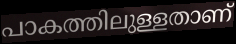
പാകത്തിലുള്ളതാണ്